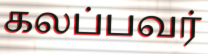
கலப்பவர்